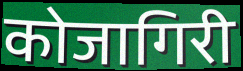
कोजागिरी